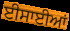
ਈਸਾਈਆਂ